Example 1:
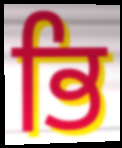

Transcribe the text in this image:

ਭਿ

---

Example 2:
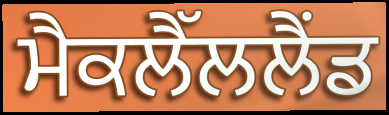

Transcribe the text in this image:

ਮੈਕਲੈੱਲਲੈਂਡ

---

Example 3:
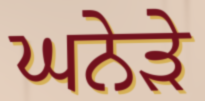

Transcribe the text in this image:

ਘਨੇੜੇ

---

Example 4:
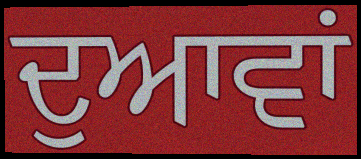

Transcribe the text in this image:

ਦੁਆਵਾਂ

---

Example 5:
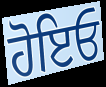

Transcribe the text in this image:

ਹੋਇਓ